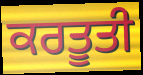
ਕਰਤੂਤੀ